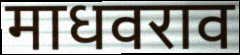
माधवराव